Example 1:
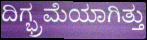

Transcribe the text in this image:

ದಿಗ್ಭ್ರಮೆಯಾಗಿತ್ತು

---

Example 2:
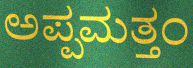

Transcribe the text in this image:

ಅಪ್ಪಮತ್ತಂ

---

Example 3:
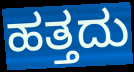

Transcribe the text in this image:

ಹತ್ತದು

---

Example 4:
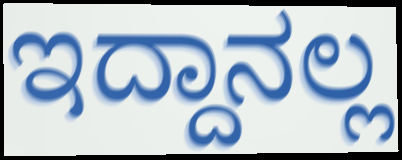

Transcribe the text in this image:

ಇದ್ದಾನಲ್ಲ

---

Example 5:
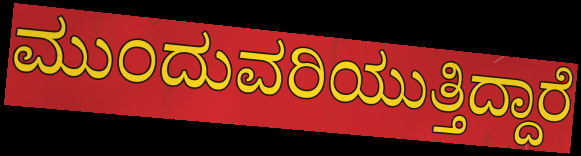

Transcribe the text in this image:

ಮುಂದುವರಿಯುತ್ತಿದ್ದಾರೆ